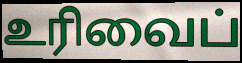
உரிவைப்